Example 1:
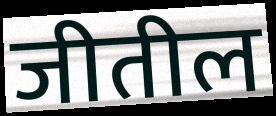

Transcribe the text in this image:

जीतील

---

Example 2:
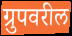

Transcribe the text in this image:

ग्रुपवरील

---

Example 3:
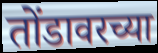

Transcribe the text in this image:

तोंडावरच्या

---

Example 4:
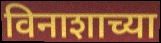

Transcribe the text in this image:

विनाशाच्या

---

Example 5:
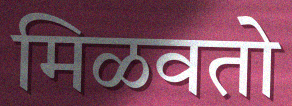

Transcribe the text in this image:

मिळवतो